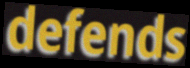
defends